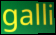
galli